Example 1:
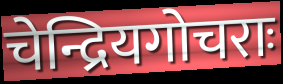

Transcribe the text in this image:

चेन्द्रियगोचराः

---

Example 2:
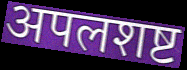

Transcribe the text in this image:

अपलशष्ट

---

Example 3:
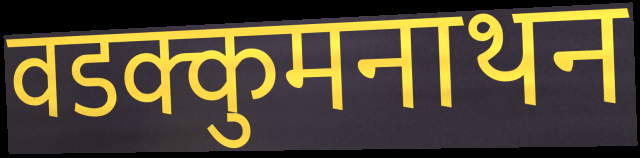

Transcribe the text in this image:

वडक्कुमनाथन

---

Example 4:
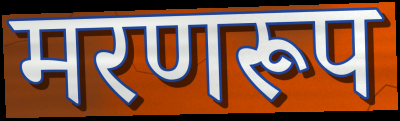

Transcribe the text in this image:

मरणरूप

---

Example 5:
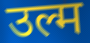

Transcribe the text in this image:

उल्म